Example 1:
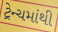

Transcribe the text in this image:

ટ્રેન્ચમાંથી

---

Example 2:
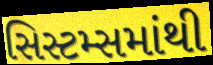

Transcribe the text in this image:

સિસ્ટમ્સમાંથી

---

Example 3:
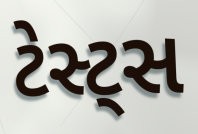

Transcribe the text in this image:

ટેસ્ટ્સ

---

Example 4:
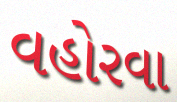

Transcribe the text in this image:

વહોરવા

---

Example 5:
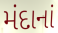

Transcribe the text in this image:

મંદાનાં